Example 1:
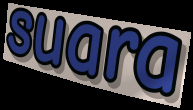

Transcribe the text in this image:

suara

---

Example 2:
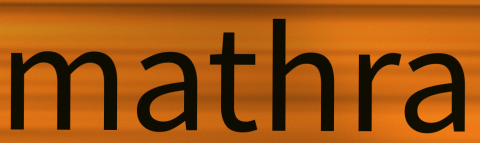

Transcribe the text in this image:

mathra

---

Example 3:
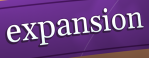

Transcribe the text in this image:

expansion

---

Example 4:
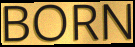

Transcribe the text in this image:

BORN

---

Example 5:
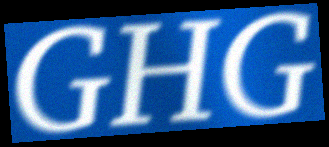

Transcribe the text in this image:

GHG